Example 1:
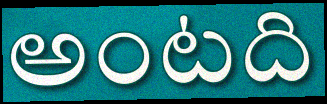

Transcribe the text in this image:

అంటది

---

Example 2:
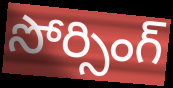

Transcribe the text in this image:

సోర్సింగ్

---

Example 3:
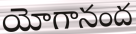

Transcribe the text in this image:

యోగానంద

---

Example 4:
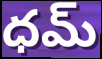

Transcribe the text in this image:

ధమ్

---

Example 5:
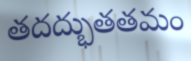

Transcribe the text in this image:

తదద్భుతతమం